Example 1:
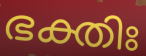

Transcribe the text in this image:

ഭക്തിഃ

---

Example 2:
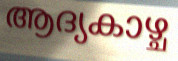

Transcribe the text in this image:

ആദ്യകാഴ്ച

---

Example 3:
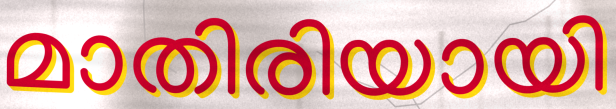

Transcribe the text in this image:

മാതിരിയായി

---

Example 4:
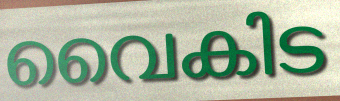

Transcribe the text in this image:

വൈകിട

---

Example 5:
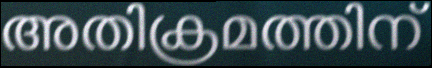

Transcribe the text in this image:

അതിക്രമത്തിന്